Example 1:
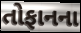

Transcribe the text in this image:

તોફાનના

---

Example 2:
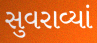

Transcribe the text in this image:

સુવરાવ્યાં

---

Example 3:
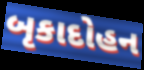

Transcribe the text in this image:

બૃકાદોહન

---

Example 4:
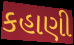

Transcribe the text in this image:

કહાણી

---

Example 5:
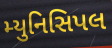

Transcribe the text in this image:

મ્યુનિસિપલ